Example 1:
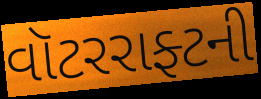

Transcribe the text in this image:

વૉટરરાફ્ટની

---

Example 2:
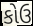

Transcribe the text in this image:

કોઉ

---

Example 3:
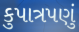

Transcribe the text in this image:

કુપાત્રપણું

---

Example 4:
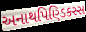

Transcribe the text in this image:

અનાથપિણ્ડિકસ્સ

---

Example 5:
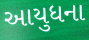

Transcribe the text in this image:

આયુધના